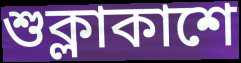
শুক্লাকাশে